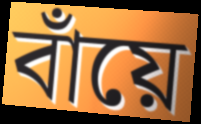
বাঁয়ে